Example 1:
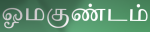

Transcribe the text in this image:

ஓமகுண்டம்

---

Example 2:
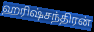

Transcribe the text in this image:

ஹரிஷ்சந்திரன்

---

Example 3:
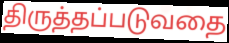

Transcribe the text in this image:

திருத்தப்படுவதை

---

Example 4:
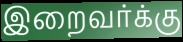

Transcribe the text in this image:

இறைவர்க்கு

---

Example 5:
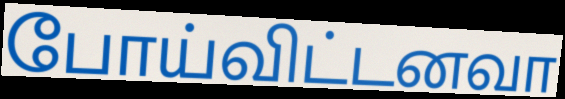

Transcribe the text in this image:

போய்விட்டனவா